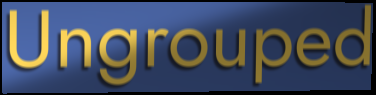
Ungrouped